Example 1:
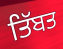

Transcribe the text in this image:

ਤਿੱਬਤ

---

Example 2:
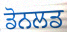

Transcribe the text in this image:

ਡੋਨਲਡ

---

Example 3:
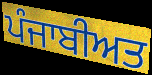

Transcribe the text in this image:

ਪੰਜਾਬੀਅਤ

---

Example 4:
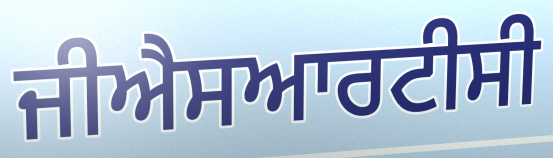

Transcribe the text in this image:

ਜੀਐਸਆਰਟੀਸੀ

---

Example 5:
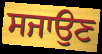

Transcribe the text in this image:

ਸਜਾਉਣ